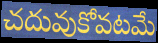
చదువుకోవటమే